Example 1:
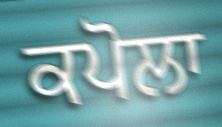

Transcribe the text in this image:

ਕਪੋਲਾ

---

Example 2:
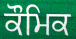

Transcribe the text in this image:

ਕੌਮਿਕ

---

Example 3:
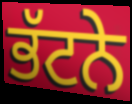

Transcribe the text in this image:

ਭੱਟਨੇ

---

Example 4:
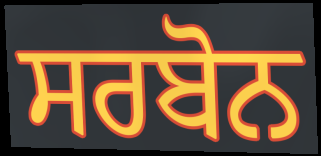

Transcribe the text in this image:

ਸਰਬੋਨ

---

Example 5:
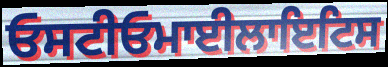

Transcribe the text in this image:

ਓਸਟੀਓਮਾਈਲਾਇਟਿਸ